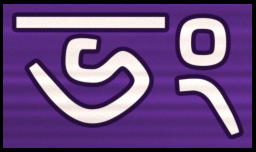
ভং